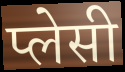
प्लेसी